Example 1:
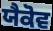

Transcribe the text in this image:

ਯੈਕੋਵ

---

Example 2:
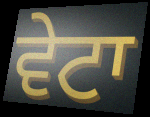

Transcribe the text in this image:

ਵੇਟਾ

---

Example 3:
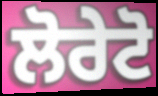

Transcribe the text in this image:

ਲੋਰੇਟੋ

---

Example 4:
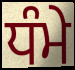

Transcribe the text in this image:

ਧੰਮੇ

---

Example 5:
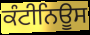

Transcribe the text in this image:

ਕੰਟੀਨਿਊਸ